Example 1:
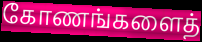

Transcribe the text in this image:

கோணங்களைத்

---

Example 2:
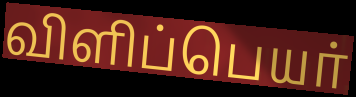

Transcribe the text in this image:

விளிப்பெயர்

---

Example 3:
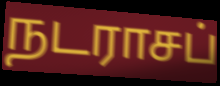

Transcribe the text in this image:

நடராசப்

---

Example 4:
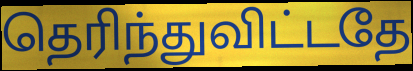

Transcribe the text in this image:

தெரிந்துவிட்டதே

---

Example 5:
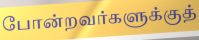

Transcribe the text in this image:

போன்றவர்களுக்குத்